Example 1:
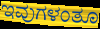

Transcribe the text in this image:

ಇವುಗಳಂತೂ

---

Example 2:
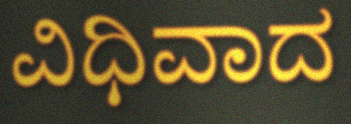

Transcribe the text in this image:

ವಿಧಿವಾದ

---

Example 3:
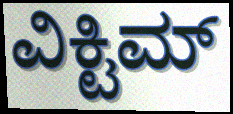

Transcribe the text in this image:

ವಿಕ್ಟಿಮ್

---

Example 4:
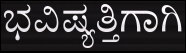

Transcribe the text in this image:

ಭವಿಷ್ಯತ್ತಿಗಾಗಿ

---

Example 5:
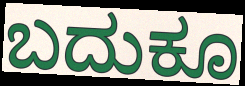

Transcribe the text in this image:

ಬದುಕೂ